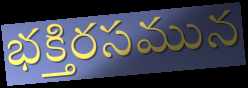
భక్తిరసమున